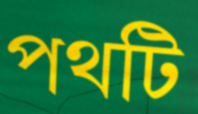
পথটি